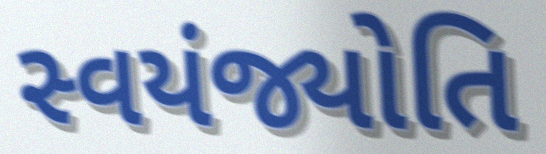
સ્વયંજ્યોતિ